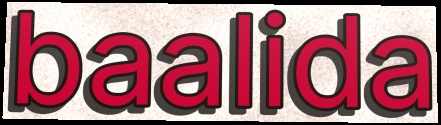
baalida